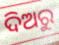
ଦିଅରୁ